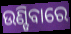
ଉଣ୍ଡିବାରେ